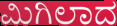
ಮಿಗಿಲಾದ